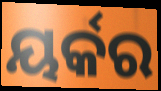
ୟର୍କର